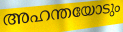
അഹന്തയോടും